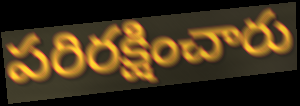
పరిరక్షించారు